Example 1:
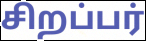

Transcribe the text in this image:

சிறப்பர்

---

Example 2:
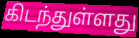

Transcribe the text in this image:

கிடந்துள்ளது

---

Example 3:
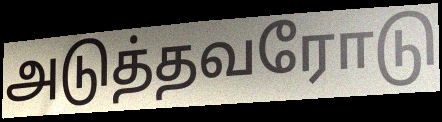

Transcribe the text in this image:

அடுத்தவரோடு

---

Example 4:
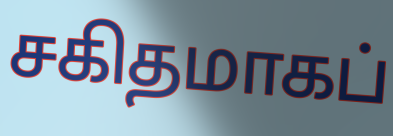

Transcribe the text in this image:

சகிதமாகப்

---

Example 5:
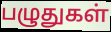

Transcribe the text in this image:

பழுதுகள்